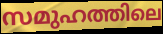
സമുഹത്തിലെ